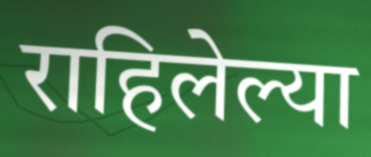
राहिलेल्या